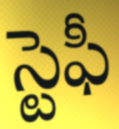
స్టెఫీ